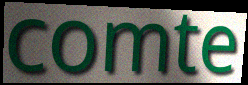
comte